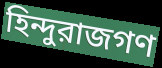
হিন্দুরাজগণ